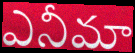
ఎనీమా